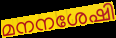
മനനശേഷി